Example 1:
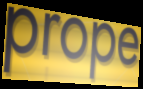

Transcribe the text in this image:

prope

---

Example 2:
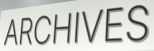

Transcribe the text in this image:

ARCHIVES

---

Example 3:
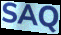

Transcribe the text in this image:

SAQ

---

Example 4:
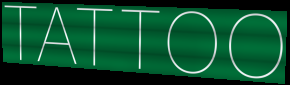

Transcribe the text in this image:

TATTOO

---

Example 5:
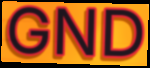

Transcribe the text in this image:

GND